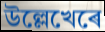
উল্লেখেৰে